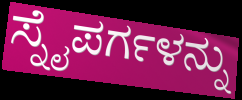
ಸ್ನೈಪರ್ಗಳನ್ನು